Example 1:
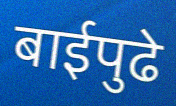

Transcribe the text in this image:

बाईपुढे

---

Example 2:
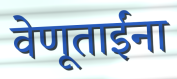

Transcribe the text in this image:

वेणूताईंना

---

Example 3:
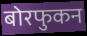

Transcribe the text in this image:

बोरफुकन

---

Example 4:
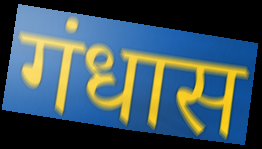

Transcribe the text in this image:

गंधास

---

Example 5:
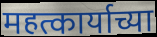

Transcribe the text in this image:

महत्कार्याच्या